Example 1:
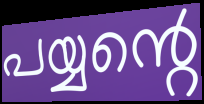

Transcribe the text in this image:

പയ്യന്റെ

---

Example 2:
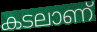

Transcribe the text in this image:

കടലാണ്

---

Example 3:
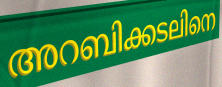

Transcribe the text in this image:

അറബിക്കടലിനെ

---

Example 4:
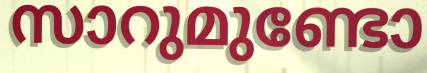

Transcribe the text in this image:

സാറുമുണ്ടോ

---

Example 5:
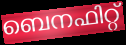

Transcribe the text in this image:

ബെനഫിറ്റ്